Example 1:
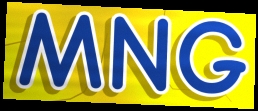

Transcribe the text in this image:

MNG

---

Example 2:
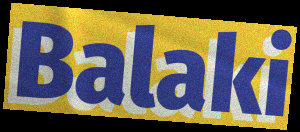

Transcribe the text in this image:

Balaki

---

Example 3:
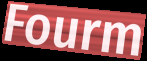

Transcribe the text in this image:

Fourm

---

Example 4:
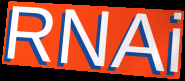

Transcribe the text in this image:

RNAi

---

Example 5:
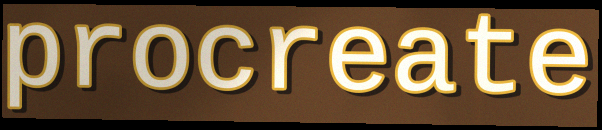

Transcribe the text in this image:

procreate